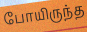
போயிருந்த